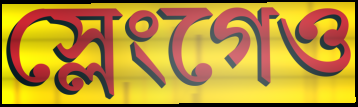
স্লেংগেও